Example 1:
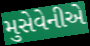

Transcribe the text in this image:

મુસેવેનીએ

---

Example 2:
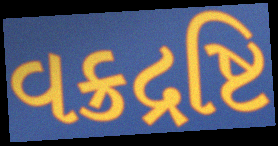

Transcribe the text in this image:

વક્રદ્રષ્ટિ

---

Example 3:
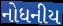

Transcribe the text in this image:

નોધનીય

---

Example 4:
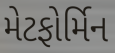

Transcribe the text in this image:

મેટફોર્મિન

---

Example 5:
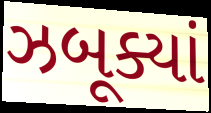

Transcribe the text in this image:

ઝબૂક્યાં